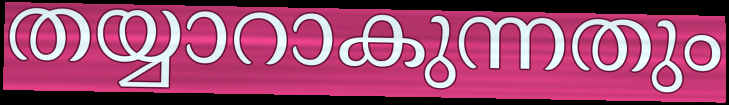
തയ്യാറാകുന്നതും